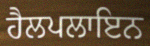
ਹੈਲਪਲਾਇਨ